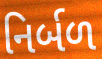
નિર્બળ